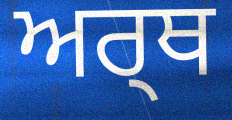
ਅਰ੍ਥ